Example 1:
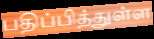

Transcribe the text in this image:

பதிப்பித்துள்ள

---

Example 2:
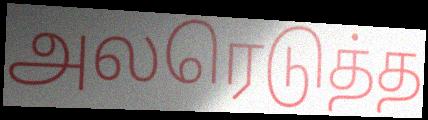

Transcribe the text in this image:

அலரெடுத்த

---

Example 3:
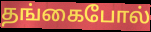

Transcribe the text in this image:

தங்கைபோல்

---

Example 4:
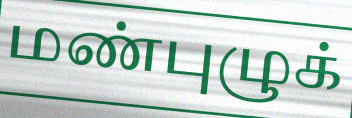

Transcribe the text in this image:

மண்புழுக்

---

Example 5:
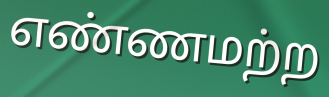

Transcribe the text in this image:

எண்ணமற்ற